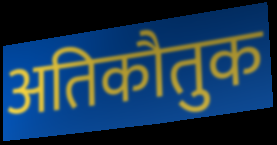
अतिकौतुक